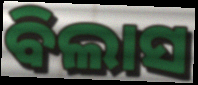
ବିଲାସ